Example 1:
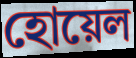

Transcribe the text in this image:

হোয়েল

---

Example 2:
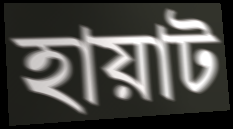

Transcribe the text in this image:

হায়াট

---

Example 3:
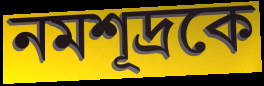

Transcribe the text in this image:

নমশূদ্রকে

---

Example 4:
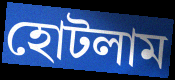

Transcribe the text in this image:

হোটলাম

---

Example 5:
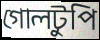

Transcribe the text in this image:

গোলটুপি